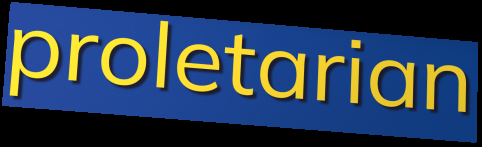
proletarian